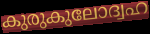
കുരുകുലോദ്വഹ